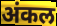
अंकल